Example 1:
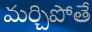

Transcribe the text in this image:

మర్చిపోతే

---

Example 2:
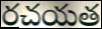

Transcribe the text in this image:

రచయత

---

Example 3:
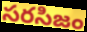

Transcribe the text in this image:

సరసిజం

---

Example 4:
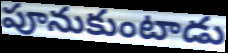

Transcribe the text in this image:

పూనుకుంటాడు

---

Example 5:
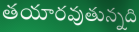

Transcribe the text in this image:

తయారవుతున్నది